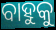
ବାହୁକୁ